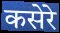
कसेरे